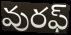
వురఫ్